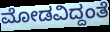
ಮೋಡವಿದ್ದಂತೆ